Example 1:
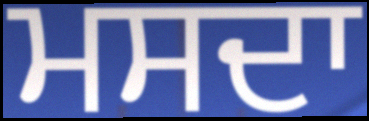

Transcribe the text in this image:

ਮਸਦਾ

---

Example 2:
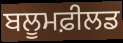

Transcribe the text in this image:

ਬਲੂਮਫ਼ੀਲਡ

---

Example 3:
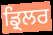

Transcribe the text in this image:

ਡ੍ਰਿਲਰ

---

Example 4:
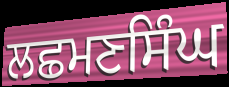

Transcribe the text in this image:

ਲਛਮਣਸਿੰਘ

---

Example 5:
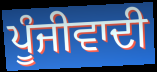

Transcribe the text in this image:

ਪੂੰਜੀਵਾਦੀ